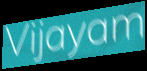
Vijayam